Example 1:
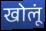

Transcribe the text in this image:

खोलूं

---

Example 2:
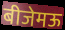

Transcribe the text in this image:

बीजेमऊ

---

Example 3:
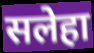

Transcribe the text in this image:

सलेहा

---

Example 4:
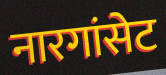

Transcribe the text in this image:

नारगांसेट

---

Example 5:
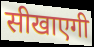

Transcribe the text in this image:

सीखाएगी